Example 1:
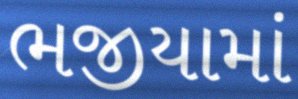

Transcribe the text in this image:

ભજીયામાં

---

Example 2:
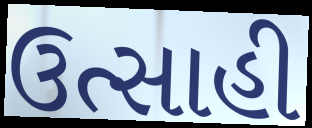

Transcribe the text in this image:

ઉત્સાહી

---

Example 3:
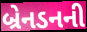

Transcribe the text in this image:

બ્રેનડનની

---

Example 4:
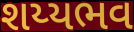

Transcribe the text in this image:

શય્યભવ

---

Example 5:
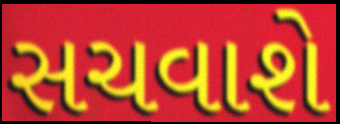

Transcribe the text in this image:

સચવાશે